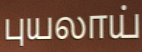
புயலாய்